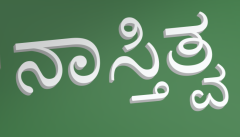
ನಾಸ್ತಿತ್ವ